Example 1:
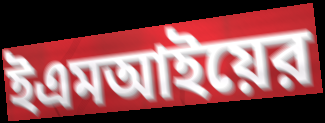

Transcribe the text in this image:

ইএমআইয়ের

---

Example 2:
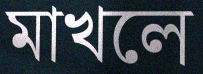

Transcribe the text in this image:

মাখলে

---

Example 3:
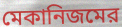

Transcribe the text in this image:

মেকানিজমের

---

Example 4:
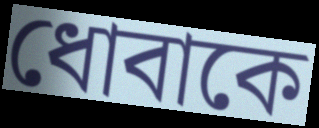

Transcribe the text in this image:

ধোবাকে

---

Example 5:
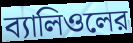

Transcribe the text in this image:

ব্যালিওলের